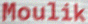
Moulik